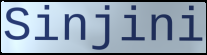
Sinjini